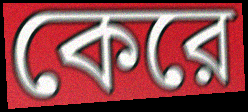
কেরে